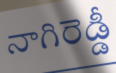
నాగిరెడ్డీ